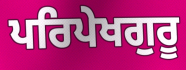
ਪਰਿਪੇਖਗੁਰੂ